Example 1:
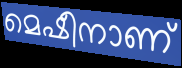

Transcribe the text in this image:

മെഷീനാണ്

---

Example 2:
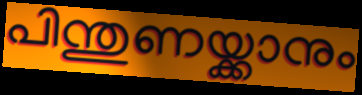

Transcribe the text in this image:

പിന്തുണയ്ക്കാനും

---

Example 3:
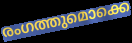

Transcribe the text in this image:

രംഗത്തുമൊക്കെ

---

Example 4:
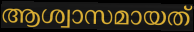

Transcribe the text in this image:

ആശ്വാസമായത്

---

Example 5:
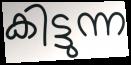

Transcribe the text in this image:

കിട്ടുന്ന